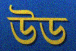
উড